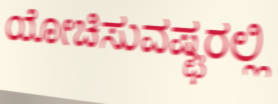
ಯೋಚಿಸುವಷ್ಟರಲ್ಲಿ